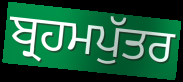
ਬ੍ਰਹਮਪੁੱਤਰ